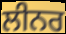
ਲੀਨਰ